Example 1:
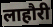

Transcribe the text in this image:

लाहौरी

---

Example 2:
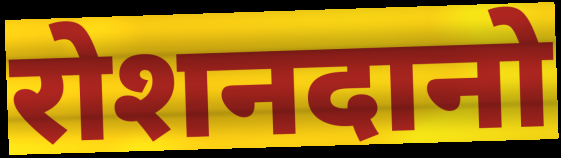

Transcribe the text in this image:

रोशनदानो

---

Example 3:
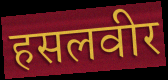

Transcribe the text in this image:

हसलवीर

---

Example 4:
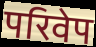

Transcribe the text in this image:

परिवेप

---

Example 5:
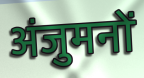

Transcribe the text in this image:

अंजुमनों